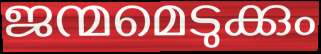
ജന്മമെടുക്കും